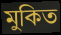
মুকিত